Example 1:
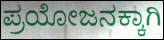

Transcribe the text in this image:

ಪ್ರಯೋಜನಕ್ಕಾಗಿ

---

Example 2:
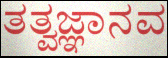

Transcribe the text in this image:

ತತ್ವಜ್ಞಾನವ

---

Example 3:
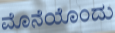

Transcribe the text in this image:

ಮೊನೆಯೊಂದು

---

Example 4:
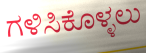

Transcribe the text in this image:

ಗಳಿಸಿಕೊಳ್ಳಲು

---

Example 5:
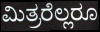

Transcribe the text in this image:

ಮಿತ್ರರೆಲ್ಲರೂ